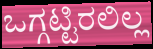
ಒಗ್ಗಟ್ಟಿರಲಿಲ್ಲ